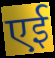
एई